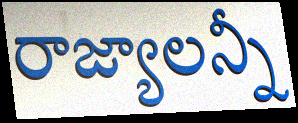
రాజ్యాలన్నీ